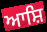
ਆਸ਼ਿ